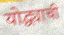
योद्ध्याची